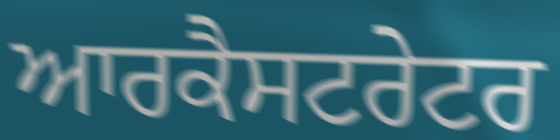
ਆਰਕੈਸਟਰੇਟਰ